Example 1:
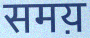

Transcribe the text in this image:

समय़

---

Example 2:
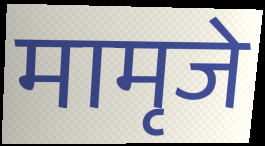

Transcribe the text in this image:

मामृजे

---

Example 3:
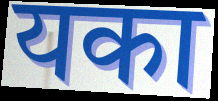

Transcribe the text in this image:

यका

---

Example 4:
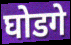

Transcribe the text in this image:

घोडगे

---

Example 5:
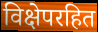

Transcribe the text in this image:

विक्षेपरहित